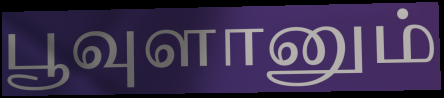
பூவுளானும்